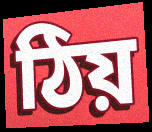
ঠিয়